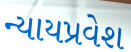
ન્યાયપ્રવેશ